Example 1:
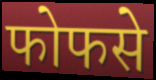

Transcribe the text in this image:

फोफसे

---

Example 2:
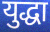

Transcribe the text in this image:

युद्धा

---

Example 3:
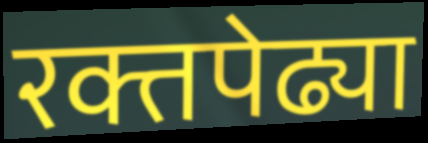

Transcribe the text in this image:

रक्तपेढ्या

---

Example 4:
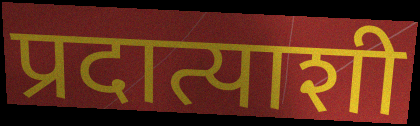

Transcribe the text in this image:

प्रदात्याशी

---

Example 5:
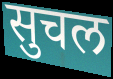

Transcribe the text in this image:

सुचल